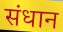
संधान